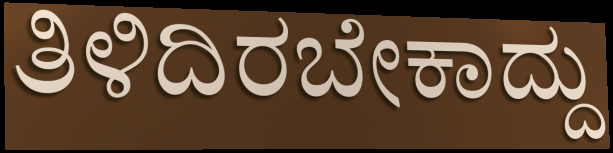
ತಿಳಿದಿರಬೇಕಾದ್ದು